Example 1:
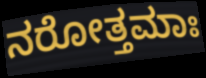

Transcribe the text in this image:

ನರೋತ್ತಮಾಃ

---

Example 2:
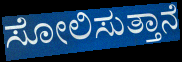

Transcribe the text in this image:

ಸೋಲಿಸುತ್ತಾನೆ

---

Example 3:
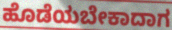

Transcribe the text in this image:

ಹೊಡೆಯಬೇಕಾದಾಗ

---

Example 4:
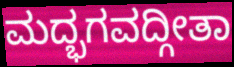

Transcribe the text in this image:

ಮದ್ಭಗವದ್ಗೀತಾ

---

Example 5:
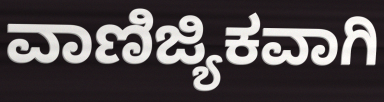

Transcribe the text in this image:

ವಾಣಿಜ್ಯಿಕವಾಗಿ